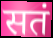
सतं